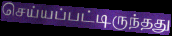
செய்யப்பட்டிருந்தது